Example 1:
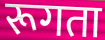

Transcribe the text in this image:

रूगता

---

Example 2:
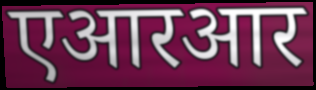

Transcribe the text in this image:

एआरआर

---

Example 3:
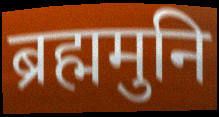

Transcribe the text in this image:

ब्रह्ममुनि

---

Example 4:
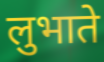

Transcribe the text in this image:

लुभाते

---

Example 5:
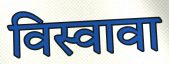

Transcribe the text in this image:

विस्वावा